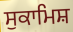
ਸੁਕਾਮਿਸ਼